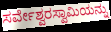
ಸರ್ವೇಶ್ವರಸ್ವಾಮಿಯನ್ನು